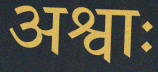
अश्वाः